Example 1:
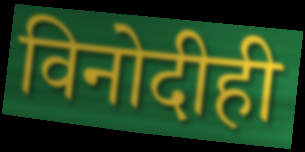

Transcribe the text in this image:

विनोदीही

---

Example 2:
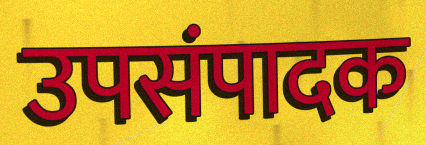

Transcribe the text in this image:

उपसंपादक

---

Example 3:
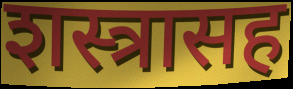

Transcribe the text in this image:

शस्त्रासह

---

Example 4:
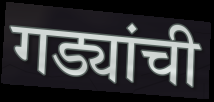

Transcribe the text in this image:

गड्यांची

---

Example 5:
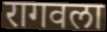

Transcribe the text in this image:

रागवला